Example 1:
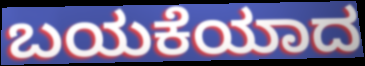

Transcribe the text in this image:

ಬಯಕೆಯಾದ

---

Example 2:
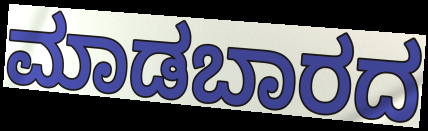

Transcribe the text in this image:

ಮಾಡಬಾರದ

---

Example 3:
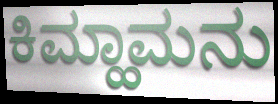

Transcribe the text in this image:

ಕಿಮ್ಹಾಮನು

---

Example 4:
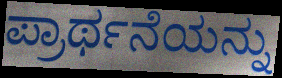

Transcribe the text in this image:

ಪ್ರಾರ್ಥನೆಯನ್ನು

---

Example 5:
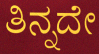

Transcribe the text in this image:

ತಿನ್ನದೇ